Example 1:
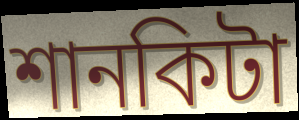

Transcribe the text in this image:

শানকিটা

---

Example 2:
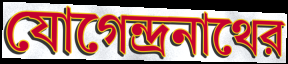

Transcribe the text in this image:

যোগেন্দ্রনাথের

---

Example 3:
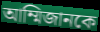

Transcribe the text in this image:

আম্মিজানকে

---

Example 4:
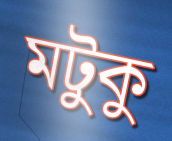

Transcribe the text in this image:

মটুকু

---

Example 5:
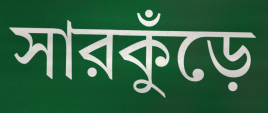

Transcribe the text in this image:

সারকুঁড়ে